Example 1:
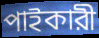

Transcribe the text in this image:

পাইকারী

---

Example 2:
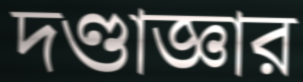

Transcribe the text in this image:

দণ্ডাজ্ঞার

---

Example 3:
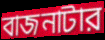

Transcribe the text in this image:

বাজনাটার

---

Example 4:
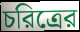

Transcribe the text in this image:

চরিত্রের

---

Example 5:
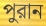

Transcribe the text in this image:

পুরান